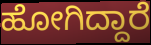
ಹೋಗಿದ್ದಾರೆ